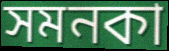
সমনকা